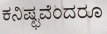
ಕನಿಷ್ಟವೆಂದರೂ